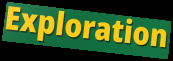
Exploration